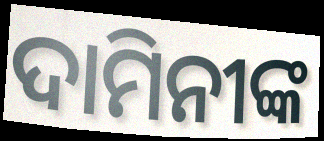
ଦାମିନୀଙ୍କ